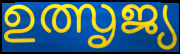
ഉത്സൃജ്യ